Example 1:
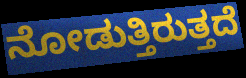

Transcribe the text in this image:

ನೋಡುತ್ತಿರುತ್ತದೆ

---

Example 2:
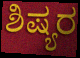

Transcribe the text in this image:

ಶಿಷ್ಯರ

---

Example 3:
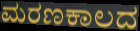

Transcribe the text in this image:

ಮರಣಕಾಲದ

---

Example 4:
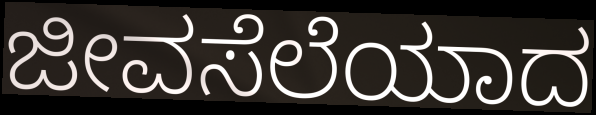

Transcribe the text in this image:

ಜೀವಸೆಲೆಯಾದ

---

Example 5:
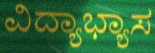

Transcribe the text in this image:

ವಿದ್ಯಾಭ್ಯಾಸ